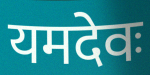
यमदेवः